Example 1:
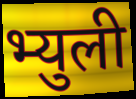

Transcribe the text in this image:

भ्युली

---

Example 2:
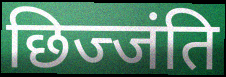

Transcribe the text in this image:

छिज्जंति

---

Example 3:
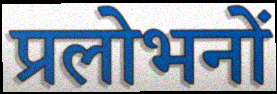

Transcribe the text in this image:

प्रलोभनों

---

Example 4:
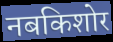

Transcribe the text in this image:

नबकिशोर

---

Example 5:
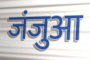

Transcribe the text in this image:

जंजुआ